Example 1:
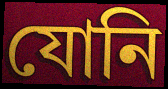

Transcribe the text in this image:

যোনি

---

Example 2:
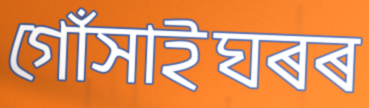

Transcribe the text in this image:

গোঁসাইঘৰৰ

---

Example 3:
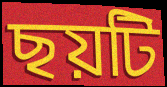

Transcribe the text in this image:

ছয়টি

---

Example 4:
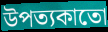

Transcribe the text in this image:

উপত্যকাতো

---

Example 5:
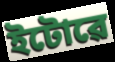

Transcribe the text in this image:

ইটোৱে